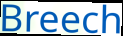
Breech